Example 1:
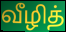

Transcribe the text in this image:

வீழித்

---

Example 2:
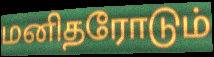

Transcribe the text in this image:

மனிதரோடும்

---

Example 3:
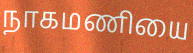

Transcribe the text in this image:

நாகமணியை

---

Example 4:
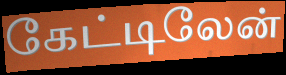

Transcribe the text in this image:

கேட்டிலேன்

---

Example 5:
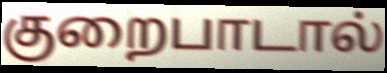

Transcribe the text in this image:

குறைபாடால்